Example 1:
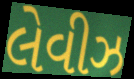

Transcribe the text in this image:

લેવીઝ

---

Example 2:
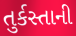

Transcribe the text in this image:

તુર્કસ્તાની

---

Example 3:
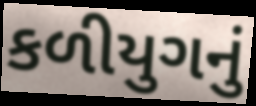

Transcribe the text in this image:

કળીયુગનું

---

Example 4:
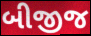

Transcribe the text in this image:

બીજીજ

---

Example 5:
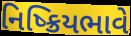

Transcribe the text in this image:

નિષ્ક્રિયભાવે